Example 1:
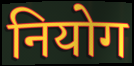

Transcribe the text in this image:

नियोग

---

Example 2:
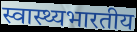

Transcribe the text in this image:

स्वास्थ्यभारतीय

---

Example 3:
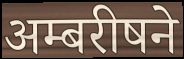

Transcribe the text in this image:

अम्बरीषने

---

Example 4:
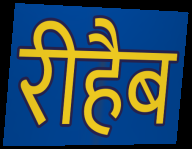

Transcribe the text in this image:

रीहैब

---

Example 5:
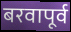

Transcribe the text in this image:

बरवापूर्व